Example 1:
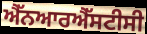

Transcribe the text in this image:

ਐੱਨਆਰਐੱਸਟੀਸੀ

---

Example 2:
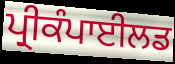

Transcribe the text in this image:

ਪ੍ਰੀਕੰਪਾਈਲਡ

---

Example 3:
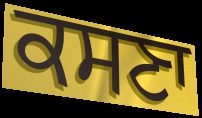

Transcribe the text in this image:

ਕਸਣਾ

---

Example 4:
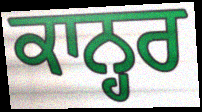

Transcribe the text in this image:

ਕਾਨ੍ਹਰ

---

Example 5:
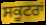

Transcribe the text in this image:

ਸਕੂਟਰਾਂ